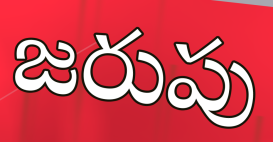
జరుపు